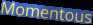
Momentous